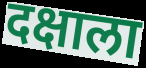
दक्षाला